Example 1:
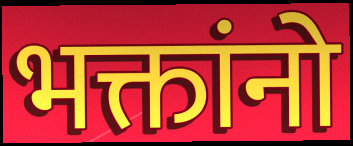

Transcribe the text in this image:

भक्तांनो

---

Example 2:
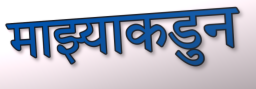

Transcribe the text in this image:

माझ्याकडुन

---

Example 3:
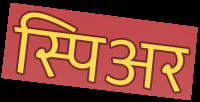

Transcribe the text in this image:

स्पिअर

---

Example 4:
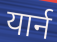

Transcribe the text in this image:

यार्न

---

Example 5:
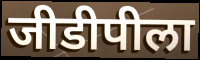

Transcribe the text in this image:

जीडीपीला